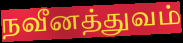
நவீனத்துவம்